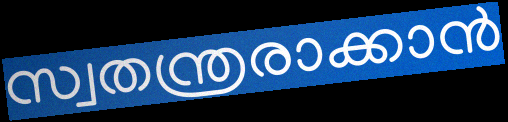
സ്വതന്ത്രരാക്കാൻ